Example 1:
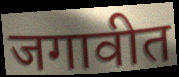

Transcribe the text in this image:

जगावीत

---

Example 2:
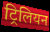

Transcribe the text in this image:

ट्रिलियन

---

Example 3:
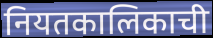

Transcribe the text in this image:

नियतकालिकाची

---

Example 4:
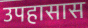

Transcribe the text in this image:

उपहासास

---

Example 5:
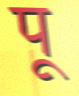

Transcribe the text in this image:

पू